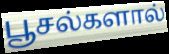
பூசல்களால்